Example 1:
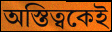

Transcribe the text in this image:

অস্তিত্বকেই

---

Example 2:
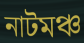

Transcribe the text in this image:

নাটমঞ্চ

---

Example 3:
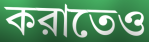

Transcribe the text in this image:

করাতেও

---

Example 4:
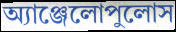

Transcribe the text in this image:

অ্যাঞ্জেলোপুলোস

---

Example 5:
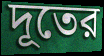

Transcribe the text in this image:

দূতের